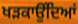
ਖੜਕਾਉਂਦਿਆਂ